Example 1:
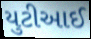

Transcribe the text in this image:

યુટીઆઈ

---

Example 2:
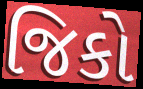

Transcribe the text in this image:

જિકો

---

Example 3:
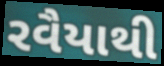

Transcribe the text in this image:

રવૈયાથી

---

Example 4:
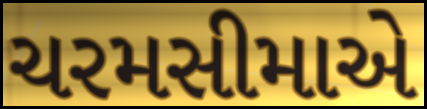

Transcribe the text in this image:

ચરમસીમાએ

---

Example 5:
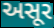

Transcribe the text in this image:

અસૂર